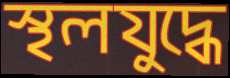
স্থলযুদ্ধে